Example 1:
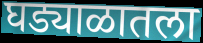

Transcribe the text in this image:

घड्याळातला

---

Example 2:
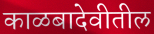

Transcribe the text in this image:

काळबादेवीतील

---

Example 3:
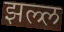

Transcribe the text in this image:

झल्ल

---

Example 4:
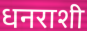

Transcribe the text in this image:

धनराशी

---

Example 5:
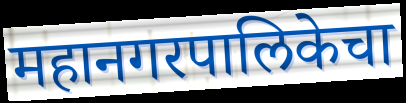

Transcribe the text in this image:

महानगरपालिकेचा